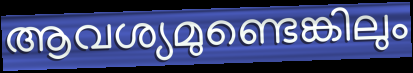
ആവശ്യമുണ്ടെങ്കിലും